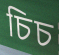
চিচ